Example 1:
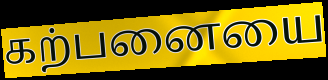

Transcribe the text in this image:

கற்பனையை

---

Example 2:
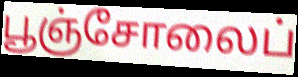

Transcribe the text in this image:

பூஞ்சோலைப்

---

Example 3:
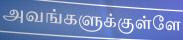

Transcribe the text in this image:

அவங்களுக்குள்ளே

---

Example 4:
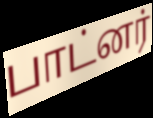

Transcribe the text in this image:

பாட்னர்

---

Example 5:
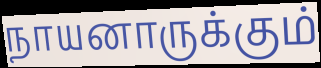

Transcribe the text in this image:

நாயனாருக்கும்